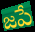
జపే